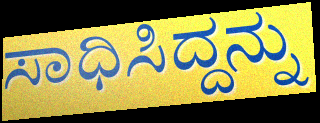
ಸಾಧಿಸಿದ್ದನ್ನು